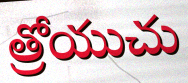
త్రోయుచు